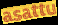
asattu